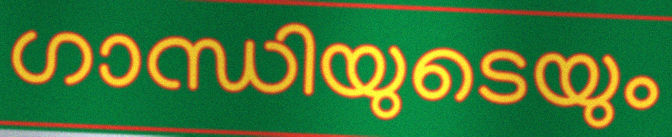
ഗാന്ധിയുടെയും